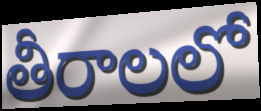
తీరాలలో